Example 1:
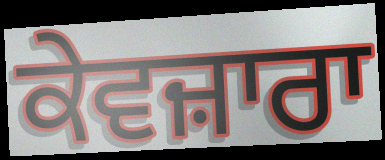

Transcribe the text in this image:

ਕੇਵਜ਼ਾਰਾ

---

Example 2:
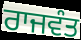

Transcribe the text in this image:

ਰਾਜਵੰਤ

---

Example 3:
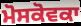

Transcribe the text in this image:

ਮੋਸਕੋਵਕਾ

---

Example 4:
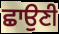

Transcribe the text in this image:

ਛਾਉਣੀ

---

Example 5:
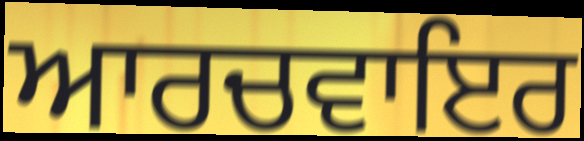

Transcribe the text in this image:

ਆਰਚਵਾਇਰ